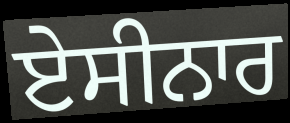
ਏਸੀਨਾਰ